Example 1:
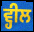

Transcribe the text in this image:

ਵ੍ਹੀਲ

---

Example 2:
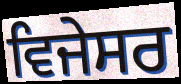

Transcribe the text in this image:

ਵਿਜੇਸਰ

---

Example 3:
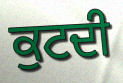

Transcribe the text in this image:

ਕੁਟਦੀ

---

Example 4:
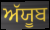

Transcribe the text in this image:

ਅੱਯੂਬ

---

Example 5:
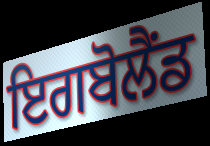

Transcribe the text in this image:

ਇਗਬੋਲੈਂਡ